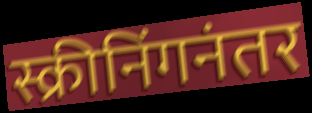
स्क्रीनिंगनंतर